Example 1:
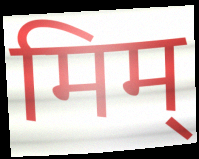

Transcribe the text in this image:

मिम्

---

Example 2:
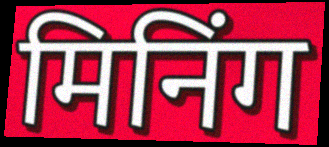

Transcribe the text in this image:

मिनिंग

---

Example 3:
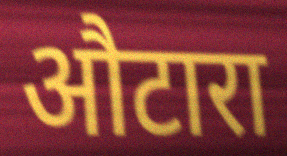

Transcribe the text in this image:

औटारा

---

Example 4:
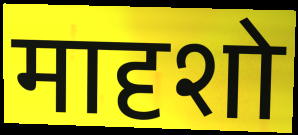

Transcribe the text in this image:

मादृशो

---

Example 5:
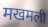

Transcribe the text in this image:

मखमली